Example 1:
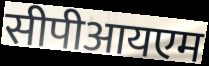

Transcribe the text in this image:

सीपीआयएम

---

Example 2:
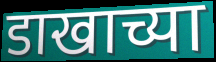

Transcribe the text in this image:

डाखाच्या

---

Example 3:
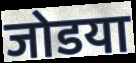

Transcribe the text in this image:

जोडया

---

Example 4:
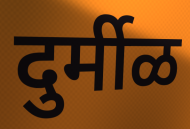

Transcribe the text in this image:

दुर्मीळ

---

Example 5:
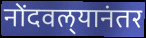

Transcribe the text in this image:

नोंदवल्यानंतर